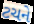
ટચને